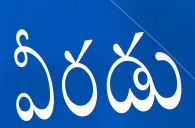
వీరడు